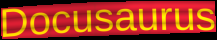
Docusaurus